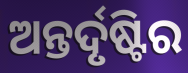
ଅନ୍ତର୍ଦୃଷ୍ଟିର